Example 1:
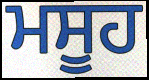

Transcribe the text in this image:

ਮਸੂਹ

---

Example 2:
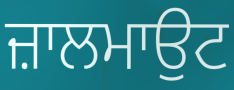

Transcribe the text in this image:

ਜ਼ਾਲਮਾਉਟ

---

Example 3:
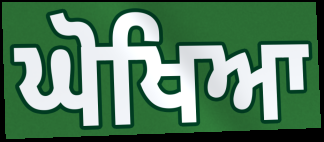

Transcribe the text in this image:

ਘੋਖਿਆ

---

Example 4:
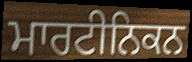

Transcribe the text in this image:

ਮਾਰਟੀਨਿਕਨ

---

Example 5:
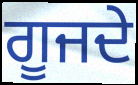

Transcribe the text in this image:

ਗੂਜਦੇ